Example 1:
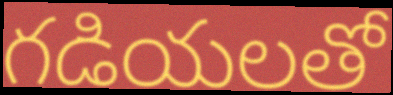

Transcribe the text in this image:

గడియలతో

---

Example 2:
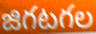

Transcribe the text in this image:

జిగటగల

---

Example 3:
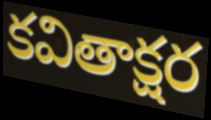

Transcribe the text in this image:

కవితాక్షర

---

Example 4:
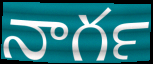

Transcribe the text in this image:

నాగర్‍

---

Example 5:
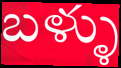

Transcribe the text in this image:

బళ్ళు